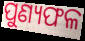
ପୁଣ୍ୟଫଳ